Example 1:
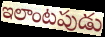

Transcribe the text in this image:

ఇలాంటపుడు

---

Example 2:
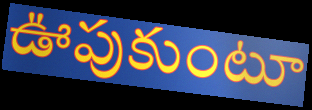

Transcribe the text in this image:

ఊపుకుంటూ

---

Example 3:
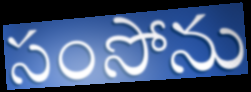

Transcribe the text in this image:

సంసోను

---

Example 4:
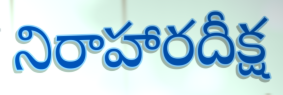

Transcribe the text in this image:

నిరాహారదీక్ష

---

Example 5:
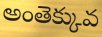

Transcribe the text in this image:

అంతెక్కువ